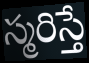
స్మరిస్తే